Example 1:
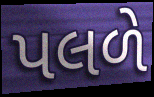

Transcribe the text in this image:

પલળે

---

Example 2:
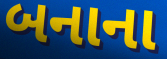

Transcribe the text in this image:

બનાના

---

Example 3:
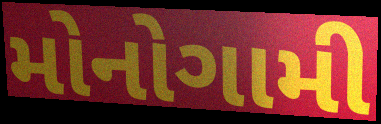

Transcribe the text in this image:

મોનોગામી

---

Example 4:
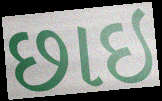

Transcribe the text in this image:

છાઇ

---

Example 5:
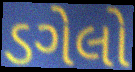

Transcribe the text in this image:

ડગેલો